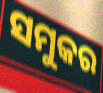
ସମୁକର